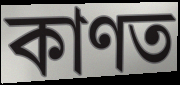
কাণত